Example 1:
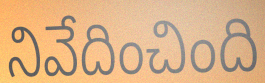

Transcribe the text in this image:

నివేదించింది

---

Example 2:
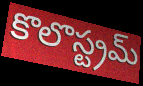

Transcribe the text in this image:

కొలొస్ట్రమ్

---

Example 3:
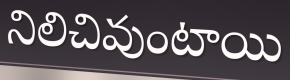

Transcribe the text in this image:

నిలిచివుంటాయి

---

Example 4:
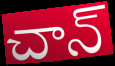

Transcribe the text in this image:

చాన్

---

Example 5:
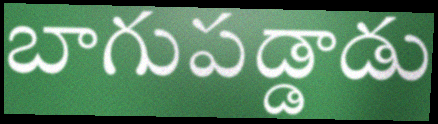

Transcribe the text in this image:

బాగుపడ్డాడు